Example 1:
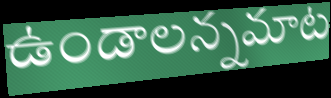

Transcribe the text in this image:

ఉండాలన్నమాట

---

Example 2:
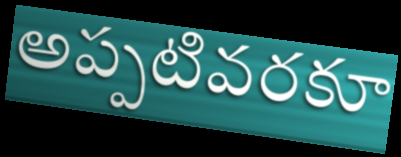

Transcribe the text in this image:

అప్పటివరకూ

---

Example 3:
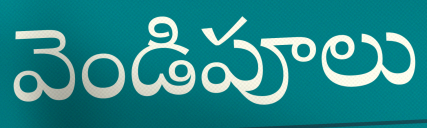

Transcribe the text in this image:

వెండిపూలు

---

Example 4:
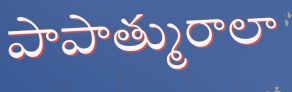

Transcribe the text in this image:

పాపాత్మురాలా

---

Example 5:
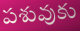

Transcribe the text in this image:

పశువుకు